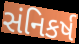
સંનિકર્ષ